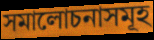
সমালোচনাসমূহ